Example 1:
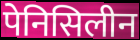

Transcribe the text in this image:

पेनिसिलीन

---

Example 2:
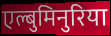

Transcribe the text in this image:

एल्बुमिनुरिया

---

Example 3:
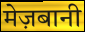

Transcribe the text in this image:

मेज़बानी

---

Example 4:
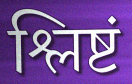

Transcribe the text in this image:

श्लिष्टं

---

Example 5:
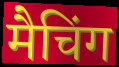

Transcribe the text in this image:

मैचिंग